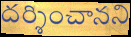
దర్శించానని